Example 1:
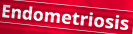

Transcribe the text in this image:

Endometriosis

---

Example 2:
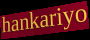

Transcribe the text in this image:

hankariyo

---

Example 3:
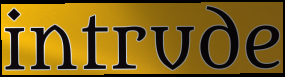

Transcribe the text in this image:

intrude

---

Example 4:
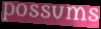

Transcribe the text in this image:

possums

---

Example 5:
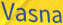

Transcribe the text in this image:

Vasna